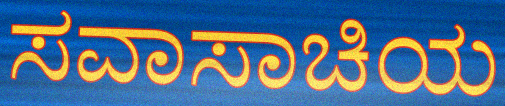
ಸವಾಸಾಚಿಯ